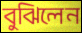
বুঝিলেন